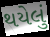
થયેલું